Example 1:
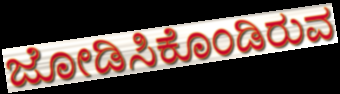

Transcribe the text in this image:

ಜೋಡಿಸಿಕೊಂಡಿರುವ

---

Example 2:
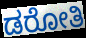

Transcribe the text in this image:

ಡರೋತಿ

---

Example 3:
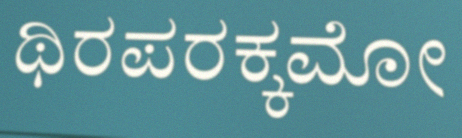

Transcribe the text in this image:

ಥಿರಪರಕ್ಕಮೋ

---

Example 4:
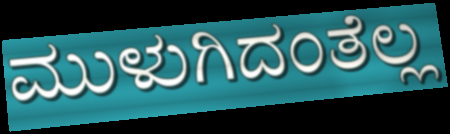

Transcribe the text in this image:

ಮುಳುಗಿದಂತೆಲ್ಲ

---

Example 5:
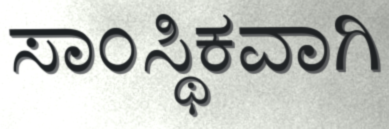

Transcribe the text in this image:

ಸಾಂಸ್ಥಿಕವಾಗಿ